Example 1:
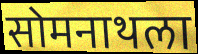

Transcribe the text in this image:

सोमनाथला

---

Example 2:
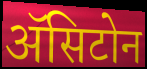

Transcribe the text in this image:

ॲसिटोन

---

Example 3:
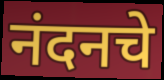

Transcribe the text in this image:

नंदनचे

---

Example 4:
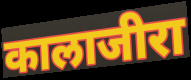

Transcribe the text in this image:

कालाजीरा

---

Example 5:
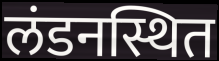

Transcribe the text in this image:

लंडनस्थित